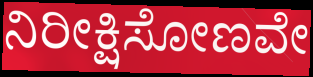
ನಿರೀಕ್ಷಿಸೋಣವೇ